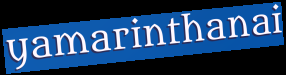
yamarinthanai